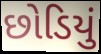
છોડિયું